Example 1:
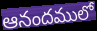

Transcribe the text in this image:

ఆనందములో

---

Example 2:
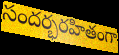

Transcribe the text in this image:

సందర్భరహితంగా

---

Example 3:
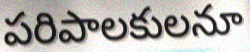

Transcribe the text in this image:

పరిపాలకులనూ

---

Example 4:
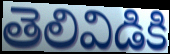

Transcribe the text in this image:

తెలివిడికి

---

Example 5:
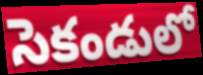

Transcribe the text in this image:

సెకండులో